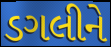
ડગલીને